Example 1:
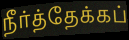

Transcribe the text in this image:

நீர்த்தேக்கப்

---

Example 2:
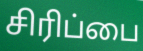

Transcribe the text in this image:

சிரிப்பை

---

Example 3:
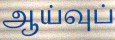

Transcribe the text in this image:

ஆய்வுப்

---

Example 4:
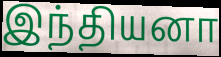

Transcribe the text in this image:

இந்தியனா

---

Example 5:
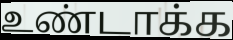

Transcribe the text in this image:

உண்டாக்க